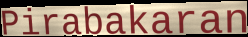
Pirabakaran